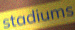
stadiums